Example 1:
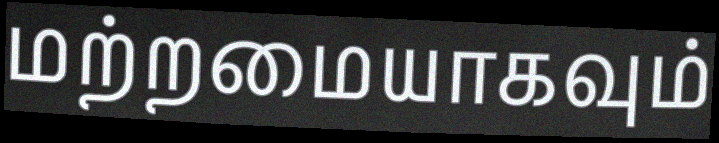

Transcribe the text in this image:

மற்றமையாகவும்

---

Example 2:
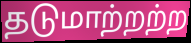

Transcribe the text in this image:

தடுமாற்றற்ற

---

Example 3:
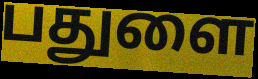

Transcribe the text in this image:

பதுளை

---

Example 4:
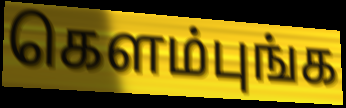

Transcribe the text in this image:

கெளம்புங்க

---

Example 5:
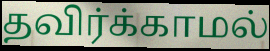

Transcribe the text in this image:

தவிர்க்காமல்